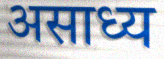
असाध्य